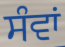
ਸੰਵਾਂ